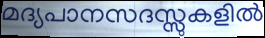
മദ്യപാനസദസ്സുകളിൽ